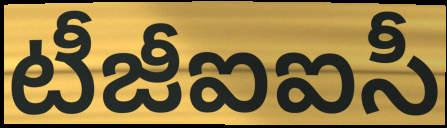
టీజీఐఐసీ